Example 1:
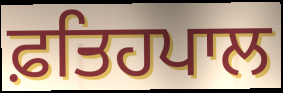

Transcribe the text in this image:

ਫ਼ਤਿਹਪਾਲ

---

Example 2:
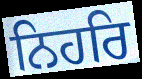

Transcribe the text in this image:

ਨਿਹਰਿ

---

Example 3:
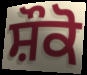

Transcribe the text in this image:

ਸ਼ੌਕੋ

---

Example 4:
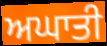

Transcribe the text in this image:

ਅਘਾਤੀ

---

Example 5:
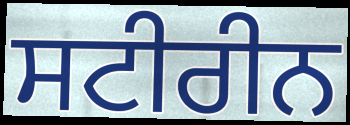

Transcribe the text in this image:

ਸਟੀਰੀਨ